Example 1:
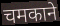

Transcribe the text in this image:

चमकाने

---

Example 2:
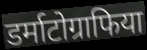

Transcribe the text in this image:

डर्माटोग्राफिया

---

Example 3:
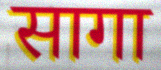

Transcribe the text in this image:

सागा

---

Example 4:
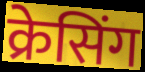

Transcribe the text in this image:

क्रेसिंग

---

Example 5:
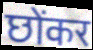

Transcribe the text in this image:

छोंकर